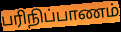
பரிநிப்பாணம்